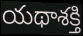
యథాశక్తి